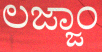
ಲಜ್ಜಾಂ